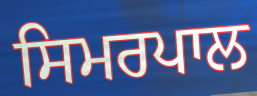
ਸਿਮਰਪਾਲ